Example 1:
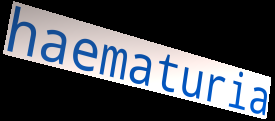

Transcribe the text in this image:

haematuria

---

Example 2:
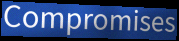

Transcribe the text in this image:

Compromises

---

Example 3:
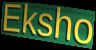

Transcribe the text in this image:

Eksho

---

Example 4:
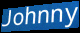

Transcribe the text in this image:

Johnny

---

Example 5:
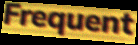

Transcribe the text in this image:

Frequent